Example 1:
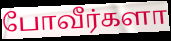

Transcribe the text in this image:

போவீர்களா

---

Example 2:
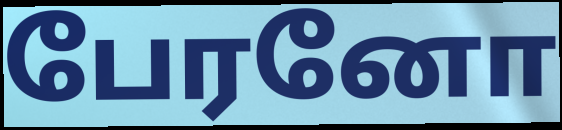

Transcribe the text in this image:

பேரனோ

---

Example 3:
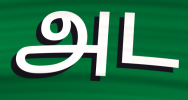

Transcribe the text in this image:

அட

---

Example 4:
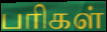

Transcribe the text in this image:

பரிகள்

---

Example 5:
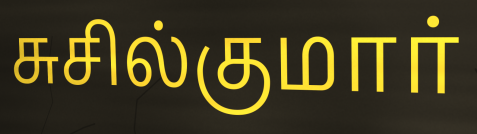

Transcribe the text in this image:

சுசில்குமார்